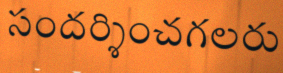
సందర్శించగలరు